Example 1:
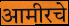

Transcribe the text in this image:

आमीरचे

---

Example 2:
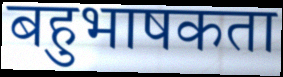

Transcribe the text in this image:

बहुभाषकता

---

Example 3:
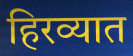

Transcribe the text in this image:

हिरव्यात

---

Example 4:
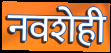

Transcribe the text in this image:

नवशेही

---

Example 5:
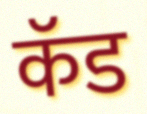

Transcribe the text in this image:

कॅड